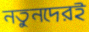
নতুনদেরই